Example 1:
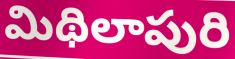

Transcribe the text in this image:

మిథిలాపురి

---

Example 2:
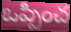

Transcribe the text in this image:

ఒప్పించ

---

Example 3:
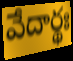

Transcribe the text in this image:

వేదార్థః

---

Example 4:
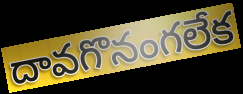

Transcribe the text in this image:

దావగొనంగలేక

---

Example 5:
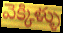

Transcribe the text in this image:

వెక్కిళ్ళు